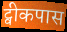
ट्वीकपास